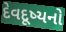
દેવદૂષ્યનો